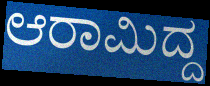
ಆರಾಮಿದ್ದ